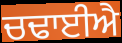
ਚਢਾਈਐ